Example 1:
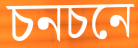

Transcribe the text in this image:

চনচনে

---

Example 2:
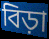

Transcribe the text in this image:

বিড়া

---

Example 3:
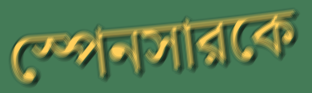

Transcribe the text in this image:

স্পেনসারকে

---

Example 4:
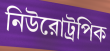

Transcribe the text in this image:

নিউরোট্রপিক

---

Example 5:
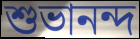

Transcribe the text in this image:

শুভানন্দ